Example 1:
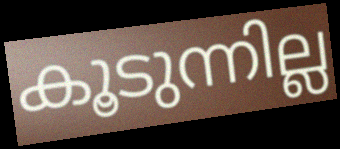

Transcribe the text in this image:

കൂടുന്നില്ല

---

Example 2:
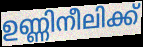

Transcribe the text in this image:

ഉണ്ണിനീലിക്ക്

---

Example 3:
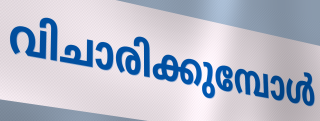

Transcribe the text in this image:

വിചാരിക്കുമ്പോൾ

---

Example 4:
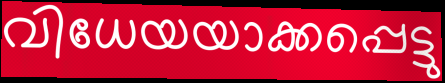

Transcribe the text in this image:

വിധേയയാക്കപ്പെട്ടു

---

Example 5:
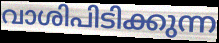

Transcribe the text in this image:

വാശിപിടിക്കുന്ന